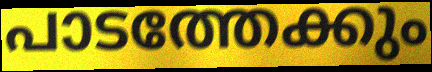
പാടത്തേക്കും